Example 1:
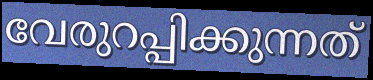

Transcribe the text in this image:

വേരുറപ്പിക്കുന്നത്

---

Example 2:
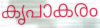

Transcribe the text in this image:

കൃപാകരം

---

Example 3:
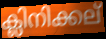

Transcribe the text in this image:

ക്ലിനിക്കല്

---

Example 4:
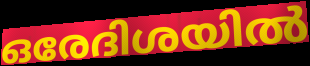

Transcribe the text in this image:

ഒരേദിശയിൽ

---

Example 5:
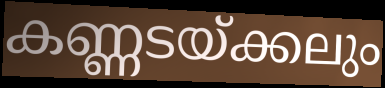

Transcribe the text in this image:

കണ്ണടയ്ക്കലും